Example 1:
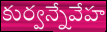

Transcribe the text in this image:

కుర్వన్నేవేహ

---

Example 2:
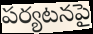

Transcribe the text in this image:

పర్యటనపై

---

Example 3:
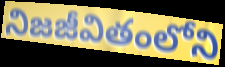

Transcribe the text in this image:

నిజజీవితంలోని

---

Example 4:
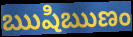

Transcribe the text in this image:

ఋషిఋణం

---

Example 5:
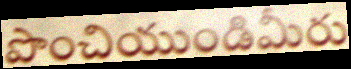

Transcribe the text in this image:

పొంచియుండిమీరు